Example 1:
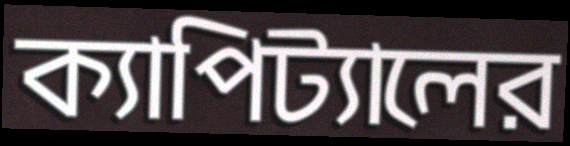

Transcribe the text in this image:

ক্যাপিট্যালের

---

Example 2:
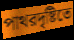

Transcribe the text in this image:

পাথরদৃষ্টিতে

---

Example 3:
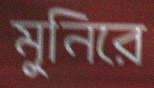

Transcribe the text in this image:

মুনিরে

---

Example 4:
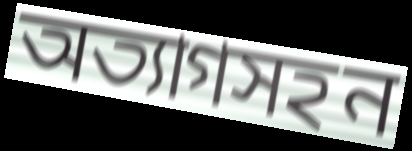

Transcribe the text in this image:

অত্যাগসহন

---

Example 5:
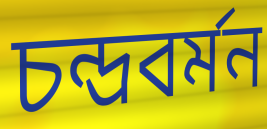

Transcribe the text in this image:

চন্দ্রবর্মন